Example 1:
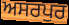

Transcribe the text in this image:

ਅਸਰਪੁਰ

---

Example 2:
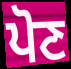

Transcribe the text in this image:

ਪੋਣ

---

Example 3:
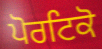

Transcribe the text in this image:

ਪੋਰਟਿਕੋ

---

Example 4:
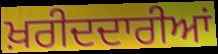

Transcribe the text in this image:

ਖ਼ਰੀਦਦਾਰੀਆਂ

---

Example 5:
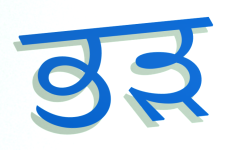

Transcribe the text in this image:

ਭੜ